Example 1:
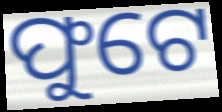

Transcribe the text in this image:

ଫୁଟେ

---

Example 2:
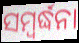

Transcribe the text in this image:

ସମ୍ୱର୍ଦ୍ଧନା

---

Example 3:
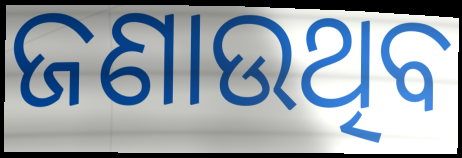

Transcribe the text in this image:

ଜଣାଉଥିବ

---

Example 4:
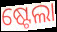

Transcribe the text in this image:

ଷ୍ଟେଲା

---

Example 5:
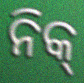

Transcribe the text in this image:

ନିକ୍